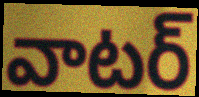
వాటర్